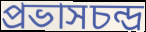
প্রভাসচন্দ্র